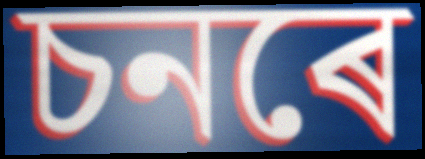
চনৰে